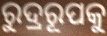
ରୁଦ୍ରରୂପକୁ